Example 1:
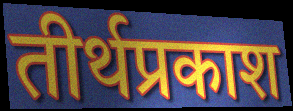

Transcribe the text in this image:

तीर्थप्रकाश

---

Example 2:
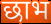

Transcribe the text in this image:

छाभ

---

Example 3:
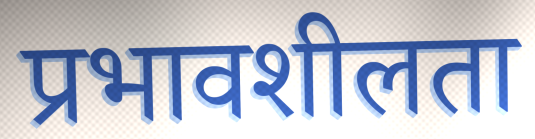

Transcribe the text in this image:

प्रभावशीलता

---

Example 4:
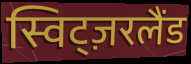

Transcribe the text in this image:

स्विट्ज़रलैंड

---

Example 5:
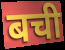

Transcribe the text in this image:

बची